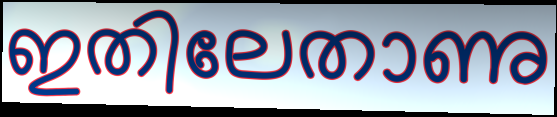
ഇതിലേതാണു